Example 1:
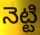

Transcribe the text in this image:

నెట్టి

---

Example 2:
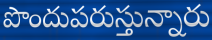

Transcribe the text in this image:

పొందుపరుస్తున్నారు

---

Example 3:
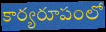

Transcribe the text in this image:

కార్యరూపంలో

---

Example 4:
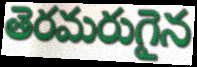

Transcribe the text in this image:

తెరమరుగైన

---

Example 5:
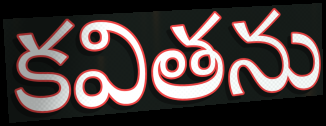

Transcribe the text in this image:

కవితను